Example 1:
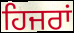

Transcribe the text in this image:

ਹਿਜਰਾਂ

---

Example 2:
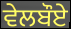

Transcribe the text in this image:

ਵੇਲਬੌਏ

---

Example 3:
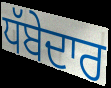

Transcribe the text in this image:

ਧੱਬੇਦਾਰ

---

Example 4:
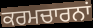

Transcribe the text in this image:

ਕਰਮਚਾਰਨਾਂ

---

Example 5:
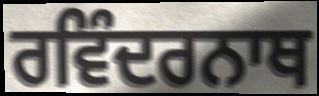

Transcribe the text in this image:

ਰਵਿੰਦਰਨਾਥ